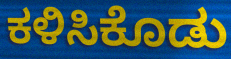
ಕಳಿಸಿಕೊಡು